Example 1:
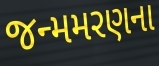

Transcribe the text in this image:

જન્મમરણના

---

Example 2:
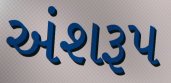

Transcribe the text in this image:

અંશરૂપ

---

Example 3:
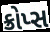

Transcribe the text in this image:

ક્રોપ્સ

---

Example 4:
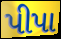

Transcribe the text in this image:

પીપા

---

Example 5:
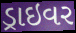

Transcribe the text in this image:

ડ્રાઇવર